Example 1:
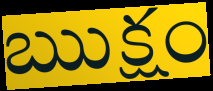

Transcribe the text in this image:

ఋక్షం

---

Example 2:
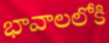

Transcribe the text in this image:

భావాలలోకి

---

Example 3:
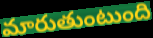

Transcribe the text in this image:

మారుతుంటుంది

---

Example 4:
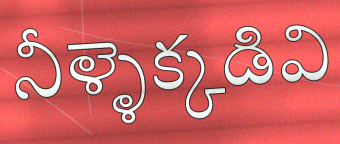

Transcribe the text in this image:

నీళ్ళెక్కడివి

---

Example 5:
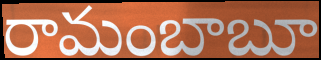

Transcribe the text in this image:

రామంబాబూ